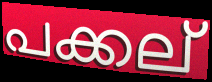
പക്കല്